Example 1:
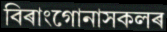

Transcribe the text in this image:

বিৰাংগোনাসকলৰ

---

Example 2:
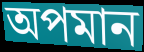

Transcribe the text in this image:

অপমান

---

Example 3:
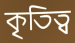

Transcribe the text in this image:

কৃতিত্ব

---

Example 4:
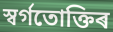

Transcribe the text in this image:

স্বৰ্গতোক্তিৰ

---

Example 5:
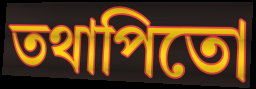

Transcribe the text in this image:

তথাপিতো